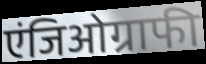
एंजिओग्राफी